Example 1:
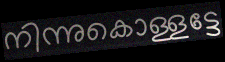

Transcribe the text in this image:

നിന്നുകൊള്ളട്ടേ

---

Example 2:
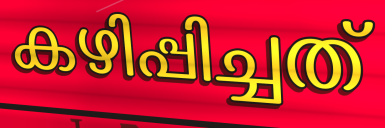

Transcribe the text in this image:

കഴിപ്പിച്ചത്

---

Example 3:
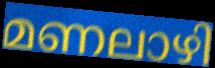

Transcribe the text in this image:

മണലാഴി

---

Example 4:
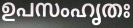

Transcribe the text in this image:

ഉപസംഹൃതഃ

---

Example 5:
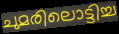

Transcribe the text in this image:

ചുമരിലൊട്ടിച്ച